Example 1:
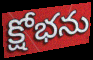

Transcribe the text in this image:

క్షోభను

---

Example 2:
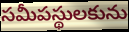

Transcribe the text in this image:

సమీపస్థులకును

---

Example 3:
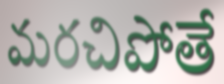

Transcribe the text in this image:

మరచిపోతే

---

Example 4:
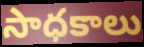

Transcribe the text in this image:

సాధకాలు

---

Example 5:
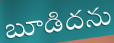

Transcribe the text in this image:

బూడిదను